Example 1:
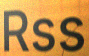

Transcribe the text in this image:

Rss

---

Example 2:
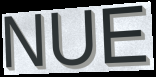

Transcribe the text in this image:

NUE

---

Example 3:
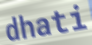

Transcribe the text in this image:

dhati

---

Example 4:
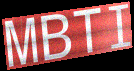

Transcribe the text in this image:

MBTI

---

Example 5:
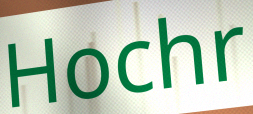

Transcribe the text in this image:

Hochr